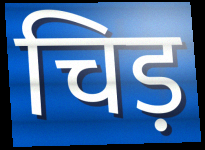
चिड़